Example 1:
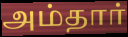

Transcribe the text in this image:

அம்தார்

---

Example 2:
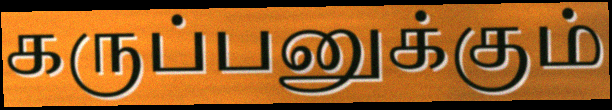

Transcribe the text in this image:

கருப்பனுக்கும்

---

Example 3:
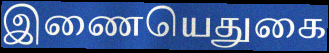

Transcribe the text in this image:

இணையெதுகை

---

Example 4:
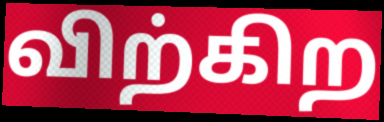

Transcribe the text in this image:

விற்கிற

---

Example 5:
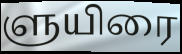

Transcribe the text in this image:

ளுயிரை